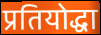
प्रतियोद्धा